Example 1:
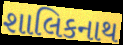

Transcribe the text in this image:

શાલિકનાથ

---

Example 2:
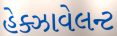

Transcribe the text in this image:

હેક્ઝાવેલન્ટ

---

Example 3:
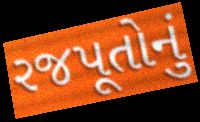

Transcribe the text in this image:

રજપૂતોનું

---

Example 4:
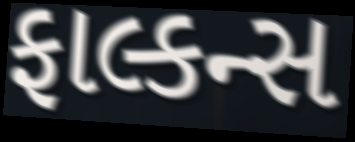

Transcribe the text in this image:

ફાલ્કન્સ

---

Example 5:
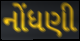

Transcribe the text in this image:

નોંધણી